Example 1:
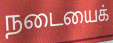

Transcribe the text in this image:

நடையைக்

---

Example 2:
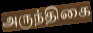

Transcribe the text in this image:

அருந்திகை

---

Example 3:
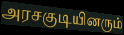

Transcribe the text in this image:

அரசகுடியினரும்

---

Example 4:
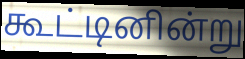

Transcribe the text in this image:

கூட்டினின்று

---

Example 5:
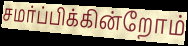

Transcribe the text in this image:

சமர்ப்பிக்கின்றோம்